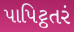
પાપિટ્ઠતરં